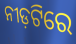
ନୀଡ଼ଟିରେ